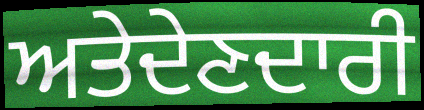
ਅਤੇਦੇਣਦਾਰੀ